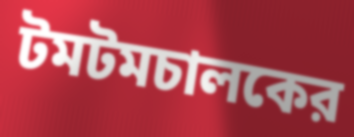
টমটমচালকের